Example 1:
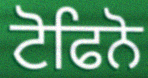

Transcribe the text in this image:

ਟੋਫਿਨੋ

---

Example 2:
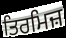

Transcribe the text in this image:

ਤਿਰਮਿਜ਼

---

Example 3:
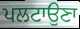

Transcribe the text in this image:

ਪਲਟਾਉਣਾ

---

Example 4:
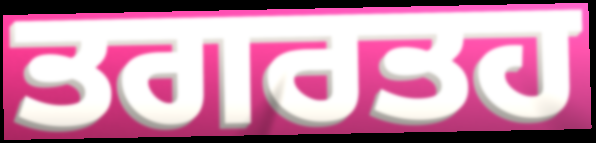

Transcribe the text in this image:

ਤਗਰਤਹ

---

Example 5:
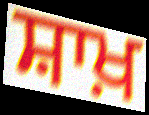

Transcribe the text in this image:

ਸ਼ਾਖ਼